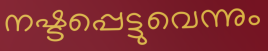
നഷ്ടപ്പെട്ടുവെന്നും